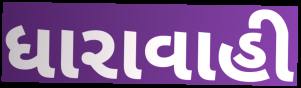
ધારાવાહી